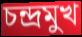
চন্দ্রমুখ